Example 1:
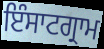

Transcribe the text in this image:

ਇੰਸਾਟਗ੍ਰਾਮ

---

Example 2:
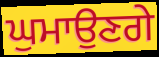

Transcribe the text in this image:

ਘੁਮਾਉਣਗੇ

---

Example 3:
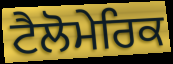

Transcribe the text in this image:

ਟੈਲੋਮੇਰਿਕ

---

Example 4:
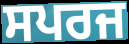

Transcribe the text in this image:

ਸਪਰਜ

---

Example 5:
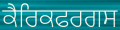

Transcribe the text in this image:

ਕੈਰਿਕਫਰਗਸ